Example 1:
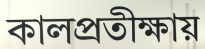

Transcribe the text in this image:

কালপ্রতীক্ষায়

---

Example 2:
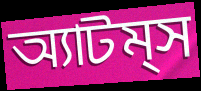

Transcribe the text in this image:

অ্যাটম্‌স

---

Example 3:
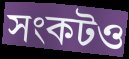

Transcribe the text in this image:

সংকটও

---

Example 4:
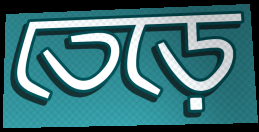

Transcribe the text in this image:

তেড়ে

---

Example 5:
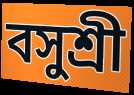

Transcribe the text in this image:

বসুশ্রী